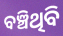
ବଞ୍ଚିଥିବି